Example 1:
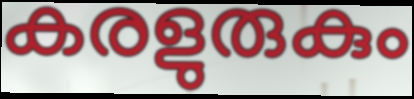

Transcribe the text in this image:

കരളുരുകും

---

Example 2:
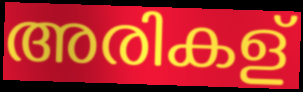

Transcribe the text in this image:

അരികള്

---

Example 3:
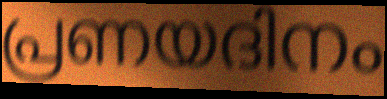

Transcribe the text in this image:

പ്രണയദിനം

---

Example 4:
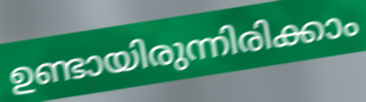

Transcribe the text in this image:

ഉണ്ടായിരുന്നിരിക്കാം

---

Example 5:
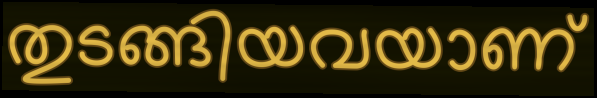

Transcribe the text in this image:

തുടങ്ങിയവയാണ്